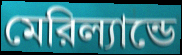
মেরিল্যান্ডে